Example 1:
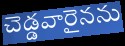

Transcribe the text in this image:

చెడ్డవారైనను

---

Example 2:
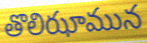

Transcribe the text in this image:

తొలిఝామున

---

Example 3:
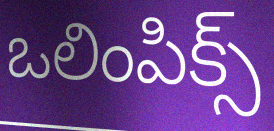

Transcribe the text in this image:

ఒలింపిక్స్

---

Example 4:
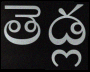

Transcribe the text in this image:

తెడ్ల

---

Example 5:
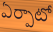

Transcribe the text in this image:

ఏర్పాటో